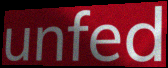
unfed